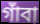
গাঁবা